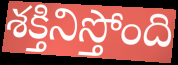
శక్తినిస్తోంది